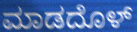
ಮಾಡದೊಳ್